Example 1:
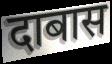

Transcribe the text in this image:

दाबास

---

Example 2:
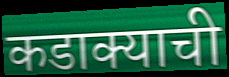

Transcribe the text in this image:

कडाक्याची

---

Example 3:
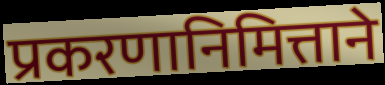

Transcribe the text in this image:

प्रकरणानिमित्ताने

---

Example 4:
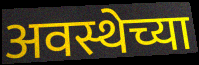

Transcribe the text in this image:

अवस्थेच्या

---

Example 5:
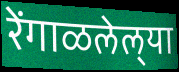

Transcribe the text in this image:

रेंगाळलेल्या